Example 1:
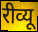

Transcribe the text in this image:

रीव्यू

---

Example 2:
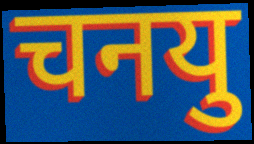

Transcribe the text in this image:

चनयु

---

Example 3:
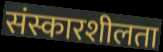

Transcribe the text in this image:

संस्कारशीलता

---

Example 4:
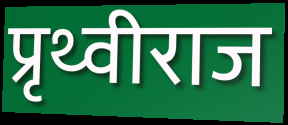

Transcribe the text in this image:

प्रृथ्वीराज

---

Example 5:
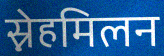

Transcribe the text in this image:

स्नेहमिलन